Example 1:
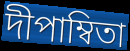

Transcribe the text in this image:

দীপাম্বিতা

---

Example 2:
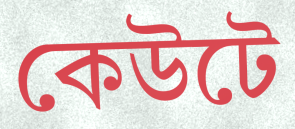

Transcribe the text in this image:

কেউটে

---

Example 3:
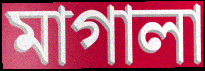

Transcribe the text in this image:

মাগালা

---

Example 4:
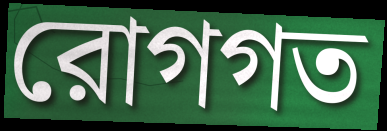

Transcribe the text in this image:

রোগগত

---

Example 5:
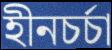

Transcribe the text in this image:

হীনচর্চা